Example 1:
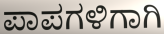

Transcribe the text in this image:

ಪಾಪಗಳಿಗಾಗಿ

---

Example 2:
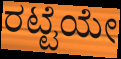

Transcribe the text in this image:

ರಟ್ಟೆಯೇ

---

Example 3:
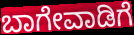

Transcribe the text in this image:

ಬಾಗೇವಾಡಿಗೆ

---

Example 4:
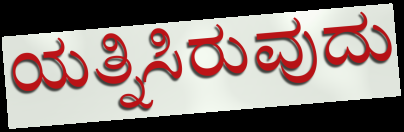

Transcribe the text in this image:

ಯತ್ನಿಸಿರುವುದು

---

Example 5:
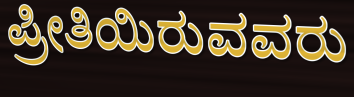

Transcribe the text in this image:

ಪ್ರೀತಿಯಿರುವವರು